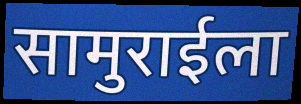
सामुराईला